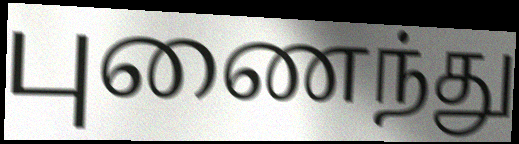
புணைந்து